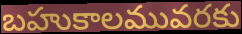
బహుకాలమువరకు